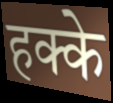
हक्के